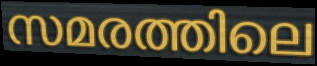
സമരത്തിലെ